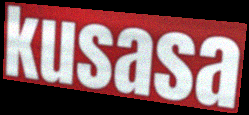
kusasa